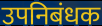
उपनिबंधक